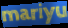
mariyu